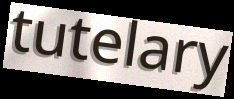
tutelary